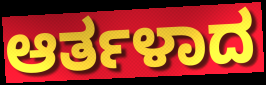
ಆರ್ತಳಾದ